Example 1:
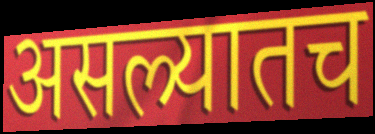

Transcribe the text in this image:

असल्यातच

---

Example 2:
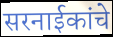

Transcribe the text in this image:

सरनाईकांचे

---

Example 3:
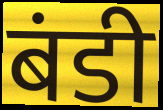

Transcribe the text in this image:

बंडी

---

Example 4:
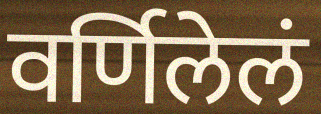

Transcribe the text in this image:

वर्णिलेलं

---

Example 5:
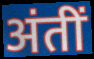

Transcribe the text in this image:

अंतीं